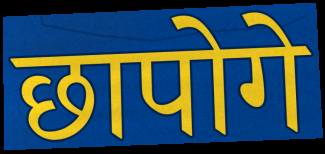
छापोगे